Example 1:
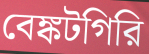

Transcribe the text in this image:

বেঙ্কটগিরি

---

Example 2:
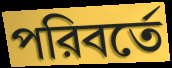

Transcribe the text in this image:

পরিবর্তে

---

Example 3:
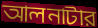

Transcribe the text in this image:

আলনাটার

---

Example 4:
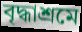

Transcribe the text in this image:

বৃদ্ধাশ্রমে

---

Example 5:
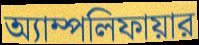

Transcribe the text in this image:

অ্যাম্পলিফায়ার